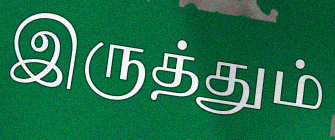
இருத்தும்